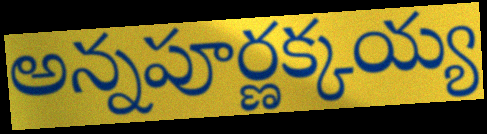
అన్నపూర్ణక్కయ్య